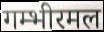
गम्भीरमल